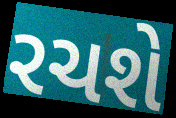
રચશે